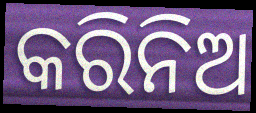
କରିନିଅ